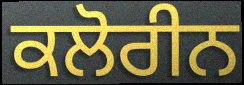
ਕਲੋਰੀਨ